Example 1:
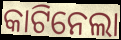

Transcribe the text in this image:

କାଟିନେଲା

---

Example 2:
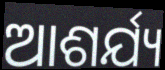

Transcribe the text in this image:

ଆଶର୍ଯ୍ୟ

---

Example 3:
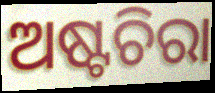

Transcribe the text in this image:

ଅଷ୍ଟଚିରା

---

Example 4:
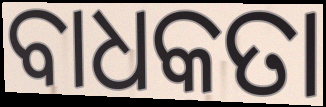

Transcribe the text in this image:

ବାଧକତା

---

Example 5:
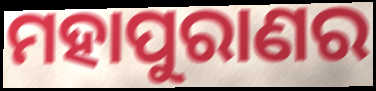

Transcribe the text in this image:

ମହାପୁରାଣର